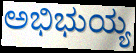
ಅಭಿಭುಯ್ಯ